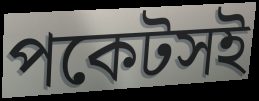
পকেটসই